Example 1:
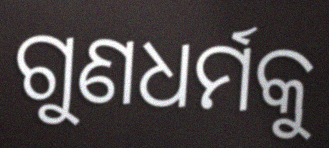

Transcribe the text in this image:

ଗୁଣଧର୍ମକୁ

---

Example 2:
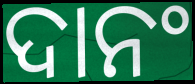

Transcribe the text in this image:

ଦାନଂ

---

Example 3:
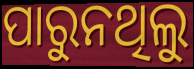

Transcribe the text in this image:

ପାରୁନଥିଲୁ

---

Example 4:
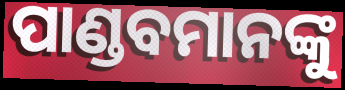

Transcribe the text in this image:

ପାଣ୍ଡବମାନଙ୍କୁ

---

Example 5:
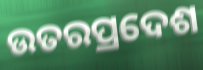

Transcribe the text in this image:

ଉତରପ୍ରଦେଶ